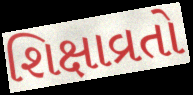
શિક્ષાવ્રતો